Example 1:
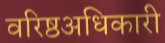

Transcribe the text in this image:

वरिष्ठअधिकारी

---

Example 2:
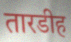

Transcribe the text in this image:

तारडीह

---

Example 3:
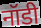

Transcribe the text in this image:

नॉडी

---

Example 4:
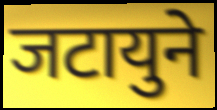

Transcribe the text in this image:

जटायुने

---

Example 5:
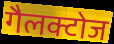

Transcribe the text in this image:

गैलक्टोज